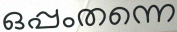
ഒപ്പംതന്നെ